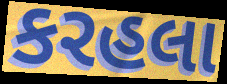
કરહલા